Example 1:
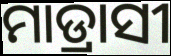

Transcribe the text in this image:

ମାଡ୍ରାସୀ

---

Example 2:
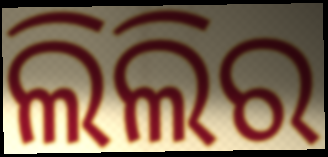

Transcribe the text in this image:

ଲିଲିର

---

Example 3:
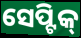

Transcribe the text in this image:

ସେପ୍ଟିକ୍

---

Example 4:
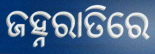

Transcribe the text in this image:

ଜହ୍ନରାତିରେ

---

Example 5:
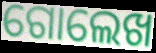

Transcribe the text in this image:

ଗୋଲେଖ